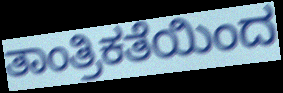
ತಾಂತ್ರಿಕತೆಯಿಂದ